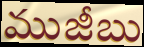
ముజీబు